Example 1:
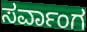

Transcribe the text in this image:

ಸರ್ವಾಂಗ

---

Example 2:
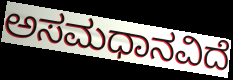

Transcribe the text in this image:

ಅಸಮಧಾನವಿದೆ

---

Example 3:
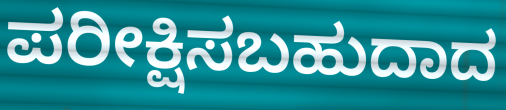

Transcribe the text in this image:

ಪರೀಕ್ಷಿಸಬಹುದಾದ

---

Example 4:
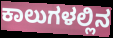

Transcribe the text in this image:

ಕಾಲುಗಳಲ್ಲಿನ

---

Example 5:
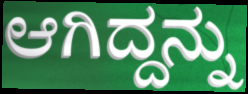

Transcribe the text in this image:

ಆಗಿದ್ದನ್ನು